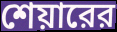
শেয়ারের